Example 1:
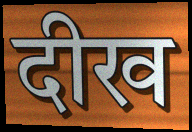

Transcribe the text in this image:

दीख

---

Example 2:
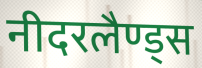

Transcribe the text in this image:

नीदरलैण्ड्स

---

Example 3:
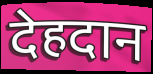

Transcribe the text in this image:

देहदान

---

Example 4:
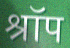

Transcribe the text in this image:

श्रॉप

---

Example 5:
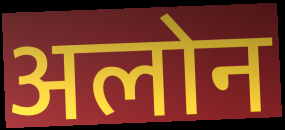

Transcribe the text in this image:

अलोन